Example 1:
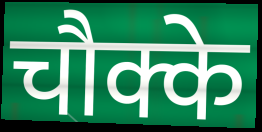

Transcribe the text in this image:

चौक्के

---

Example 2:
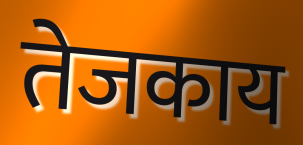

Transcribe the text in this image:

तेजकाय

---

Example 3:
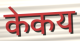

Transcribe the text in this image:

केकय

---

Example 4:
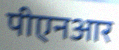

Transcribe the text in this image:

पीएनआर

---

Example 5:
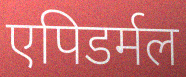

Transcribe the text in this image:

एपिडर्मल